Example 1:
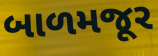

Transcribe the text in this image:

બાળમજૂર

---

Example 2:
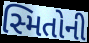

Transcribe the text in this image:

સ્મિતોની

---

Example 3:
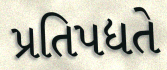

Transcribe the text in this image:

પ્રતિપદ્યતે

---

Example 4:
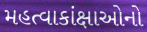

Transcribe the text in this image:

મહત્વાકાંક્ષાઓનો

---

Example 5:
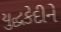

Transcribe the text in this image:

યુદ્ધકેદીને